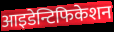
आइडेन्टिफिकेशन